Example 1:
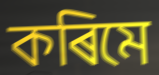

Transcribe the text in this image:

কৰিমে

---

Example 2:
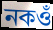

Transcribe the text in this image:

নকওঁ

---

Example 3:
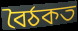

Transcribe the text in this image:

বৈঠকত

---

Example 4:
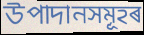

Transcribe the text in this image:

উপাদানসমূহৰ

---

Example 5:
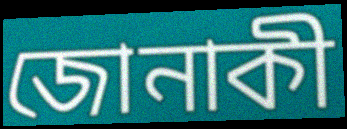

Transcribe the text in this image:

জোনাকী